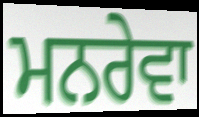
ਮਨਰੇਵਾ